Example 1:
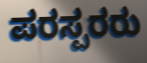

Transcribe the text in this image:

ಪರಸ್ಪರರು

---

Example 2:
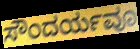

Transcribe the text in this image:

ಸೌಂದರ್ಯವೂ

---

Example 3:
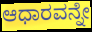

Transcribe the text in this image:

ಆಧಾರವನ್ನೇ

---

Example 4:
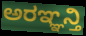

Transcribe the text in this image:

ಅರಞ್ಞನ್ತಿ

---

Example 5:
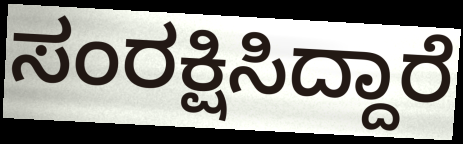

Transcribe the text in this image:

ಸಂರಕ್ಷಿಸಿದ್ದಾರೆ